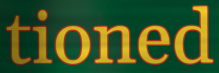
tioned